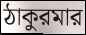
ঠাকুরমার